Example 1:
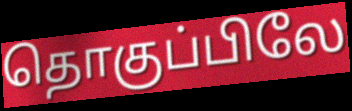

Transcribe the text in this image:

தொகுப்பிலே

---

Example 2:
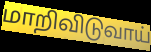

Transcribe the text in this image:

மாறிவிடுவாய்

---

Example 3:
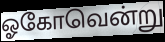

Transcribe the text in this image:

ஓகோவென்று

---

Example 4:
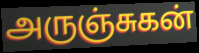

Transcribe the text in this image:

அருஞ்சுகன்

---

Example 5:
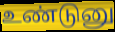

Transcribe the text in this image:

உண்டுனு